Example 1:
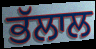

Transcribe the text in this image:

ਭੱਲਾਲ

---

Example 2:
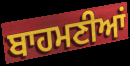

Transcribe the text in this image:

ਬਾਹਮਣੀਆਂ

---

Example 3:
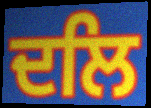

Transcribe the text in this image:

ਦਲਿ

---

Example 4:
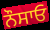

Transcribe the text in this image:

ਨੌਸਾਓ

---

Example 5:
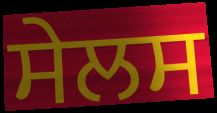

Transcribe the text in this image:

ਸੇਲਸ